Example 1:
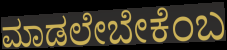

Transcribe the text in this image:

ಮಾಡಲೇಬೇಕೆಂಬ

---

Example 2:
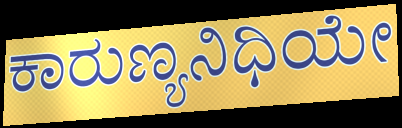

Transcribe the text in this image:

ಕಾರುಣ್ಯನಿಧಿಯೇ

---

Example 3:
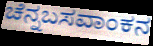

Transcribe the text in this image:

ಚೆನ್ನಬಸವಾಂಕನ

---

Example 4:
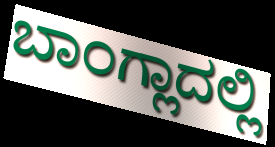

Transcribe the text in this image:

ಬಾಂಗ್ಲಾದಲ್ಲಿ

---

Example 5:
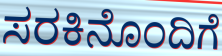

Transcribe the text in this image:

ಸರಕಿನೊಂದಿಗೆ